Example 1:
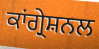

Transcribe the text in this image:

ਕਾਂਗ੍ਰੇਸ਼ਨਲ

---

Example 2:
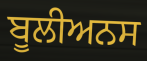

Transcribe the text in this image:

ਬੂਲੀਅਨਸ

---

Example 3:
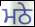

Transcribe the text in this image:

ਮਠੇ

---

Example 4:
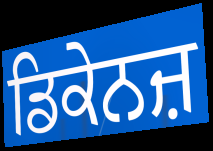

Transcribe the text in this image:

ਡਿਕੇਨਜ਼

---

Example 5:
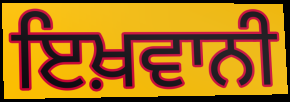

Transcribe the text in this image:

ਇਖ਼ਵਾਨੀ